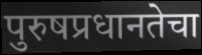
पुरुषप्रधानतेचा